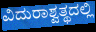
ವಿದುರಾಶ್ವತ್ಥದಲ್ಲಿ